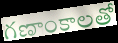
గణాంకాలతో